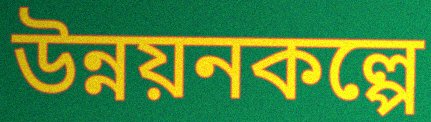
উন্নয়নকল্পে